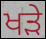
ਖਡ਼ੇ